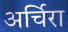
अर्चिरा